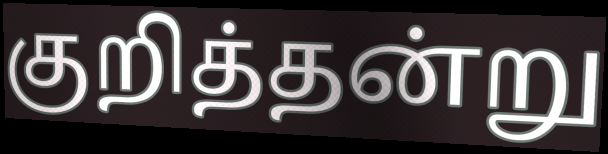
குறித்தன்று